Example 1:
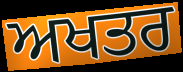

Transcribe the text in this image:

ਅਖਤਰ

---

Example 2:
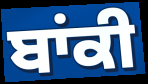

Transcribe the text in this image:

ਬਾਂਕੀ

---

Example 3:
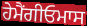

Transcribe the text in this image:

ਹੇਮੈਂਗੀਓਮਾਸ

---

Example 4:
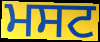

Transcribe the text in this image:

ਮਸਟ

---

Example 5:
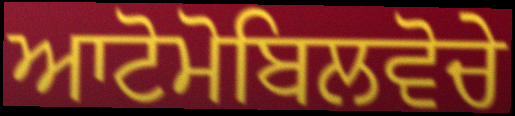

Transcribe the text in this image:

ਆਟੋਮੋਬਿਲਵੋਚੇ